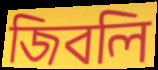
জিবলি